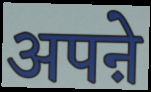
अपऩे